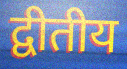
द्वीतीय